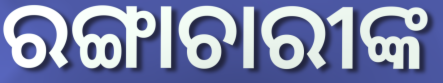
ରଙ୍ଗାଚାରୀଙ୍କ